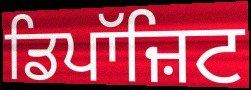
ਡਿਪਾੱਜ਼ਿਟ